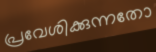
പ്രവേശിക്കുന്നതോ